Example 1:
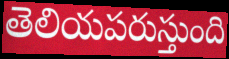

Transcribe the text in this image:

తెలియపరుస్తుంది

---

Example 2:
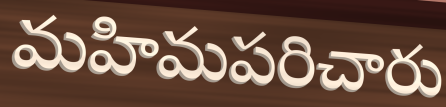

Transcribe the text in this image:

మహిమపరిచారు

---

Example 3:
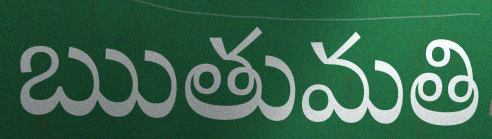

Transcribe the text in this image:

ఋతుమతి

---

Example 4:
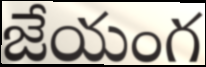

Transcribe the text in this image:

జేయంగ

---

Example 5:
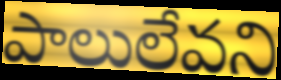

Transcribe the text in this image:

పాలులేవని